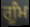
ਗੂੰਮ